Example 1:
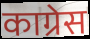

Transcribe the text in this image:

काग्रेस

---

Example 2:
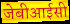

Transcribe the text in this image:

जेबीआईसी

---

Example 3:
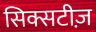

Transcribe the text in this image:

सिक्सटीज़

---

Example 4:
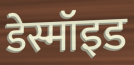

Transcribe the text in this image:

डेस्मॉइड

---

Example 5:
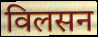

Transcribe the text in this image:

विलसन